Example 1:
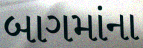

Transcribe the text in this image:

બાગમાંના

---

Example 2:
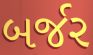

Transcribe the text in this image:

બર્જર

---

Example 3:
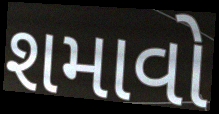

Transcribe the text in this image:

શમાવો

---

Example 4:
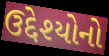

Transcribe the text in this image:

ઉદ્દેશ્યોનો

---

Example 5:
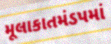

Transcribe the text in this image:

મૂલાકાતમંડપમાં